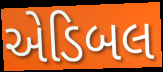
એડિબલ